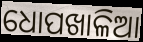
ଧୋପଖାଳିଆ